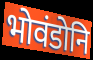
भोवंडोनि